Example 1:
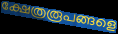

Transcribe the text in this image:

ക്ഷേത്രരൂപങ്ങളെ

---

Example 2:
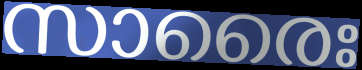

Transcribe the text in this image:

സാരൈഃ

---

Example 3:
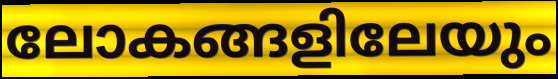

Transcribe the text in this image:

ലോകങ്ങളിലേയും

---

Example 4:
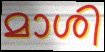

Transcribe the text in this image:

മാശി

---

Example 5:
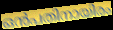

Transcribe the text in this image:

ഒൻപതിനായിരം